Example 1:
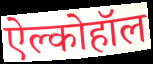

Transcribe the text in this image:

ऐल्कोहॉल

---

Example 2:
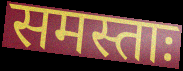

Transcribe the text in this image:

समस्ताः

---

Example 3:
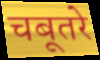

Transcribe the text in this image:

चबूतरे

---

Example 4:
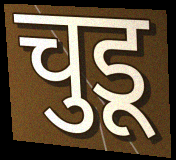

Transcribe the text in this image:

चुडू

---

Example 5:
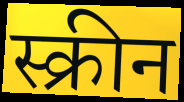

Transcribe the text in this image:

स्क्रीन